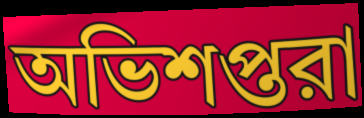
অভিশপ্তরা